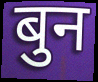
बुन